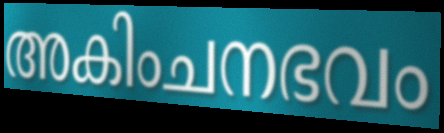
അകിംചനഭവം